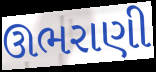
ઊભરાણી